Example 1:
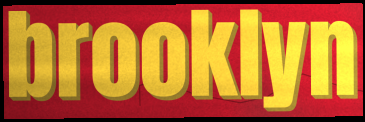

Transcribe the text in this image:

brooklyn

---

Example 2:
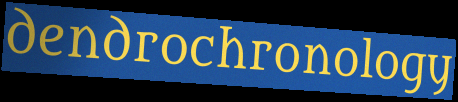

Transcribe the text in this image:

dendrochronology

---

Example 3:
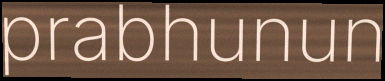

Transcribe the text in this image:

prabhunun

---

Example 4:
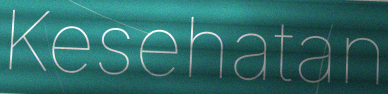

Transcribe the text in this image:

Kesehatan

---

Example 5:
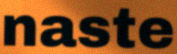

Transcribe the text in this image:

naste